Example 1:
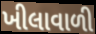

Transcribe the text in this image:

ખીલાવાળી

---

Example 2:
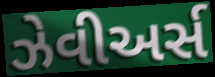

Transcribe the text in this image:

ઝેવીઅર્સ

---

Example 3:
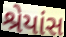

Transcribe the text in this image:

શ્રેયાંસ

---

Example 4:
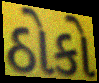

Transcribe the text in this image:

ઠોકો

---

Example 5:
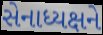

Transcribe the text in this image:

સેનાધ્યક્ષને